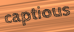
captious